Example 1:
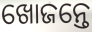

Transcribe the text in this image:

ଖୋଜନ୍ତେ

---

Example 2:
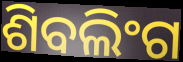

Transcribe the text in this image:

ଶିବଲିଂଗ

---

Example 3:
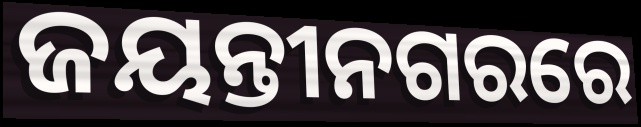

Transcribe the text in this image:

ଜୟନ୍ତୀନଗରରେ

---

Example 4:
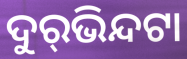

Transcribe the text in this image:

ଦୁର୍‌ଭିନ୍ଦଟା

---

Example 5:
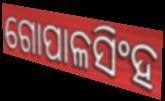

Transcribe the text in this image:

ଗୋପାଳସିଂହ